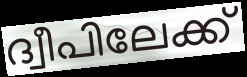
ദ്വീപിലേക്ക്